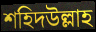
শহিদউল্লাহ